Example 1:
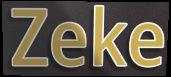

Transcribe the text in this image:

Zeke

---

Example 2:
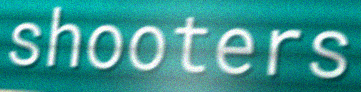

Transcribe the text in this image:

shooters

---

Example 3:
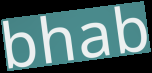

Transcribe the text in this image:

bhab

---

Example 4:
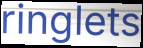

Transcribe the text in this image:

ringlets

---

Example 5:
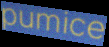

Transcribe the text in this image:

pumice